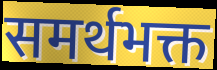
समर्थभक्त